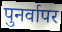
पुनर्वापर